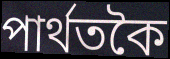
পাৰ্থতকৈ